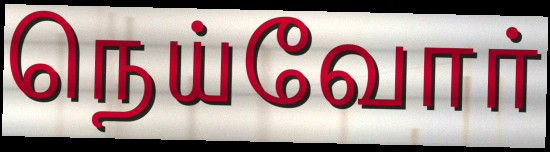
நெய்வோர்